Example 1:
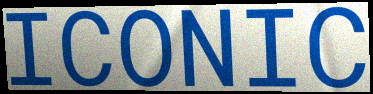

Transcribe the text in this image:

ICONIC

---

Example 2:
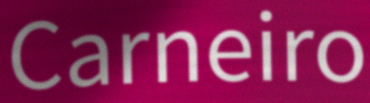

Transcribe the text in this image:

Carneiro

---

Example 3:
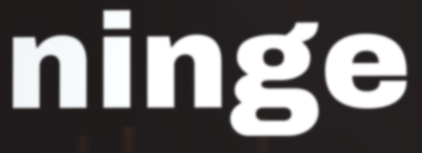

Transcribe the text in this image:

ninge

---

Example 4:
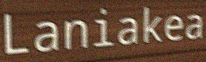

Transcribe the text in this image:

Laniakea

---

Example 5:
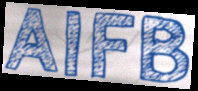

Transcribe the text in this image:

AIFB